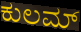
ಕುಲಮ್